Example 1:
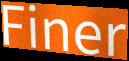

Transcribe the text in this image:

Finer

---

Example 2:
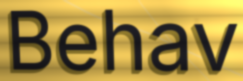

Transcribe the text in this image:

Behav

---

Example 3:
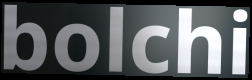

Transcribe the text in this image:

bolchi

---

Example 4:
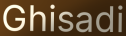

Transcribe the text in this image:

Ghisadi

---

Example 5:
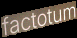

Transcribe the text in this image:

factotum